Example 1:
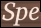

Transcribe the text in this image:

Spe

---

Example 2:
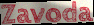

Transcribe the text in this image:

Zavoda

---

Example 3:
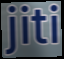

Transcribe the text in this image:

jiti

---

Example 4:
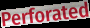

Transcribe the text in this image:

Perforated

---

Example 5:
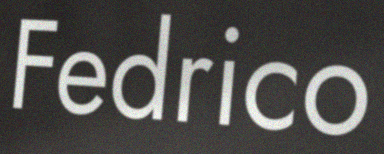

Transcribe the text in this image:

Fedrico